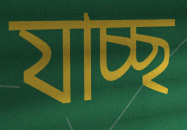
যাচ্ছ